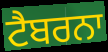
ਟੈਬਰਨਾ